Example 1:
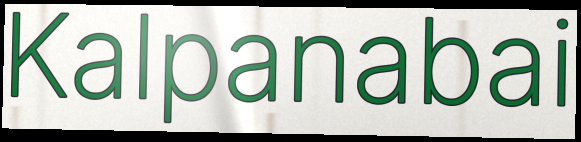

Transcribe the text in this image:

Kalpanabai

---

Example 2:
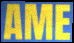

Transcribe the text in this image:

AME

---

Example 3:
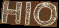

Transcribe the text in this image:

HIO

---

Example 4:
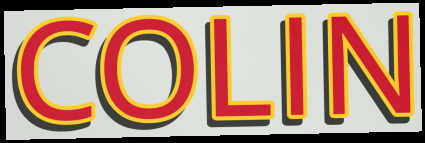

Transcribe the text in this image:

COLIN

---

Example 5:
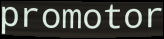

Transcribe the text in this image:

promotor